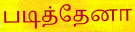
படித்தேனா